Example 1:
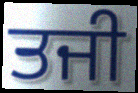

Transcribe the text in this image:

ਤਜੀ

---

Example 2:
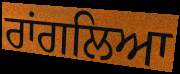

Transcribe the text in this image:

ਰਾਂਗਲਿਆ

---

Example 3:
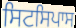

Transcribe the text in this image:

ਸਿਟਸਿਪਾਸ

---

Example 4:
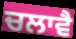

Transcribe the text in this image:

ਚਲਾਵੈ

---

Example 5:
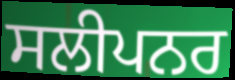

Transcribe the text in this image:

ਸਲੀਪਨਰ